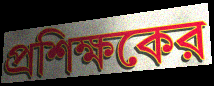
প্রশিক্ষকের